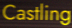
Castling